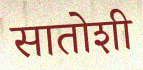
सातोशी